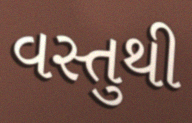
વસ્તુથી